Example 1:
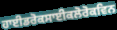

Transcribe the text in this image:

ਹਾਈਡਰੋਕਸਾਈਕਲੋਰੋਕਵਿਨ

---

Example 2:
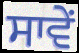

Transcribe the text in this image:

ਸਾਵੇਂ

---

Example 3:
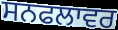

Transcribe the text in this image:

ਸਨਫਲਾਵਰ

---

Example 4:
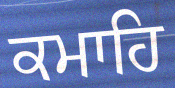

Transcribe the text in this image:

ਕਮਾਹਿ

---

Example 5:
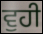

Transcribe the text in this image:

ਵੁਹੀ